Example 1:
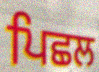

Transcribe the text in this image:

ਪਿਛਲ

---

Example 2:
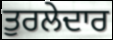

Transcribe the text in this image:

ਤੁਰਲੇਦਾਰ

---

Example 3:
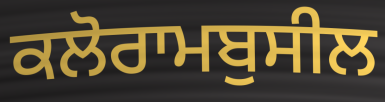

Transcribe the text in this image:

ਕਲੋਰਾਮਬੁਸੀਲ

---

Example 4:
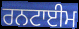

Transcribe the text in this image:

ਰਨਟਾਈਮ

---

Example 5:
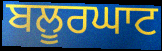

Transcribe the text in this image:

ਬਲੂਰਘਾਟ